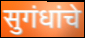
सुगंधांचे